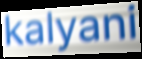
kalyani